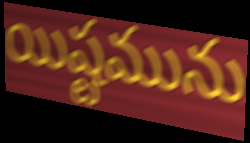
యిష్టమును